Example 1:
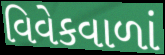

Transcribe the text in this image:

વિવેકવાળાં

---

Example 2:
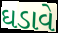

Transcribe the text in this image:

ઘડાવે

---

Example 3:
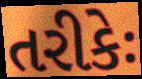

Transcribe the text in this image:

તરીકેઃ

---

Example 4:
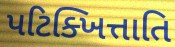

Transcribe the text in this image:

પટિક્ખિત્તાતિ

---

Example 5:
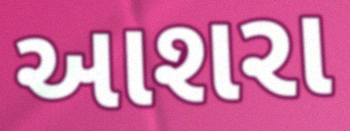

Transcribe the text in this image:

આશરા